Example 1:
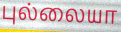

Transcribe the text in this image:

புல்லையா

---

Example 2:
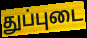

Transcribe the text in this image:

துப்புடை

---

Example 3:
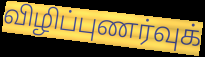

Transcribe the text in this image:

விழிப்புணர்வுக்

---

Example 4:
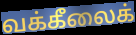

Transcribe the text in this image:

வக்கீலைக்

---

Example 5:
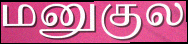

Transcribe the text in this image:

மனுகுல